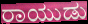
ರಾಯುಡು